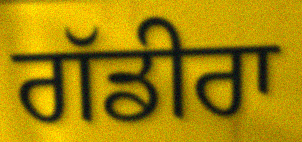
ਗੱਡੀਰਾ